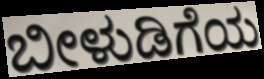
ಬೀಳುಡಿಗೆಯ